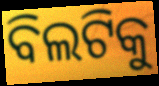
ବିଲଟିକୁ